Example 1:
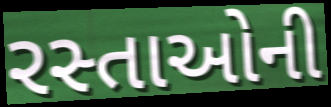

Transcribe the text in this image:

રસ્તાઓની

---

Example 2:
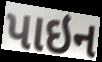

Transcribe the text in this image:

પાઇન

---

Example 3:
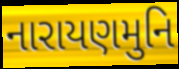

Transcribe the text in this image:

નારાયણમુનિ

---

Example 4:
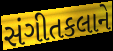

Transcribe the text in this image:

સંગીતકલાને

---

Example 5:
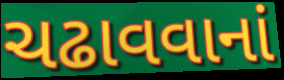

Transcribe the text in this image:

ચઢાવવાનાં